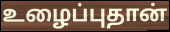
உழைப்புதான்